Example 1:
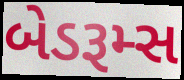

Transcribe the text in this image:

બેડરૂમ્સ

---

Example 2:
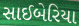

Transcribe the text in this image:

સાઈબેરિયા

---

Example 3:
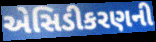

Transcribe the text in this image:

એસિડીકરણની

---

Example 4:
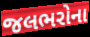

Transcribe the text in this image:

જલભરોના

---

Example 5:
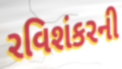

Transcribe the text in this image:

રવિશંકરની